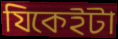
যিকেইটা